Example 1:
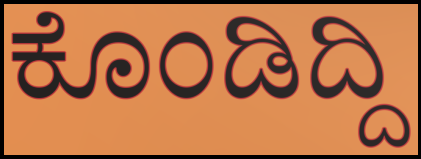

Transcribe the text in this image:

ಕೊಂಡಿದ್ದಿ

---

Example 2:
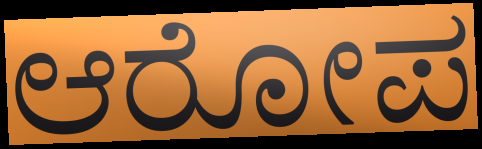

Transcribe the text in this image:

ಆರೋಪ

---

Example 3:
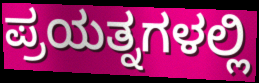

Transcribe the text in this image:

ಪ್ರಯತ್ನಗಳಲ್ಲಿ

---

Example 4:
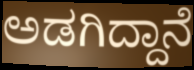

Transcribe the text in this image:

ಅಡಗಿದ್ದಾನೆ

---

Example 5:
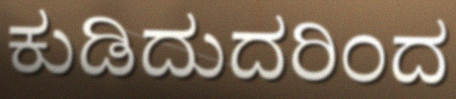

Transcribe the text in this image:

ಕುಡಿದುದರಿಂದ